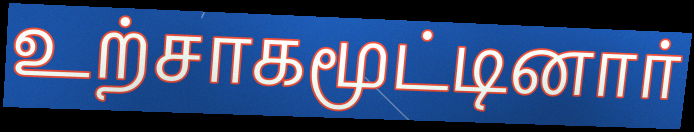
உற்சாகமூட்டினார்